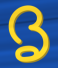
ദൃ